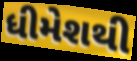
ધીમેશથી